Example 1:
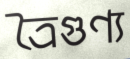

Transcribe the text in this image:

ত্রৈগুণ্য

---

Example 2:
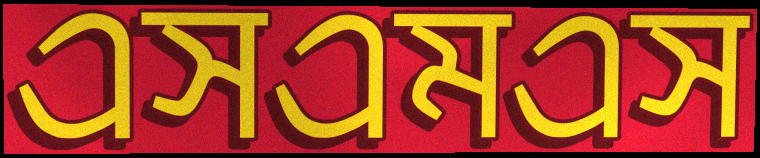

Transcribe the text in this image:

এসএমএস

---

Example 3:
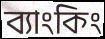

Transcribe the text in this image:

ব্যাংকিং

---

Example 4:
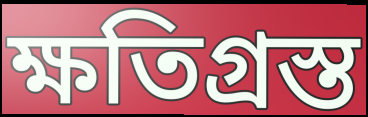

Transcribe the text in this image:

ক্ষতিগ্রস্ত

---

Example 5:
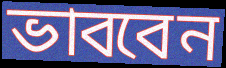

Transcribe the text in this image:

ভাববেন